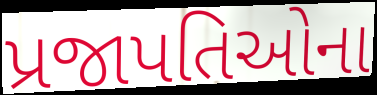
પ્રજાપતિઓના